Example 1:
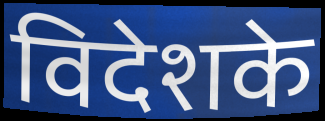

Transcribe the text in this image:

विदेशके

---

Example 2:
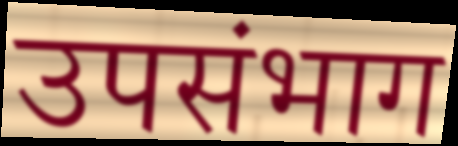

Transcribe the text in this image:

उपसंभाग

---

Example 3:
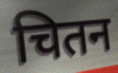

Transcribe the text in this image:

चितन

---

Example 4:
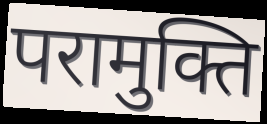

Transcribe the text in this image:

परामुक्ति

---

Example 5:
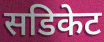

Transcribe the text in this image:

सडिकेट